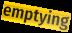
emptying